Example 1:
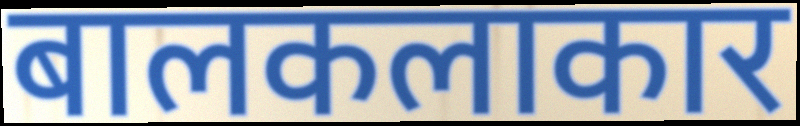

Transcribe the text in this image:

बालकलाकार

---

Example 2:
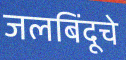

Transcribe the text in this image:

जलबिंदूचे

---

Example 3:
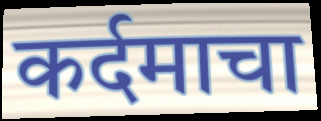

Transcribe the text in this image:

कर्दमाचा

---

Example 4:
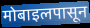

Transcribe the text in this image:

मोबाइलपासून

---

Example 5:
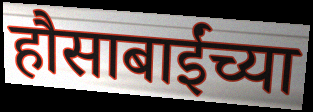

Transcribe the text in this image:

हौसाबाईंच्या